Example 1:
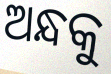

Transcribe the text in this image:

ଅନ୍ଧକୁ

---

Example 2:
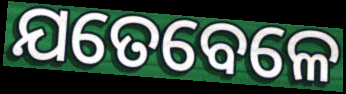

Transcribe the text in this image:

ଯତେବେଳେ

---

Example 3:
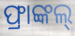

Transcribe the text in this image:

ଫ୍ରାଙ୍କଲ୍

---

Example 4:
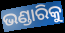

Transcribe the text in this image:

ଭଣ୍ଡାରିକୁ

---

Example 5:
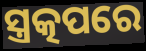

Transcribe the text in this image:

ସ୍ତ୍ରତ୍କପରେ